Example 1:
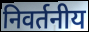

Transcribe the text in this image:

निवर्तनीय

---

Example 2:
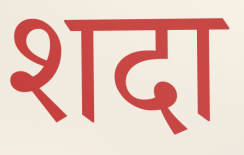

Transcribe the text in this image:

शदा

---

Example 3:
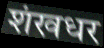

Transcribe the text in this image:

शंखधर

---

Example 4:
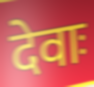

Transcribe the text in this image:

देवाः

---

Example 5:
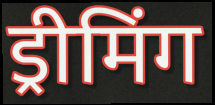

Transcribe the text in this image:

ड्रीमिंग